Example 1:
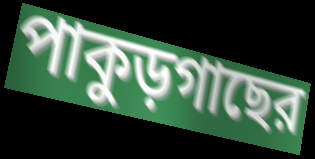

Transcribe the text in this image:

পাকুড়গাছের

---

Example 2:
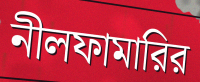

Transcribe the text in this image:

নীলফামারির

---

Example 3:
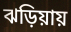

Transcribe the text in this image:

ঝড়িয়ায়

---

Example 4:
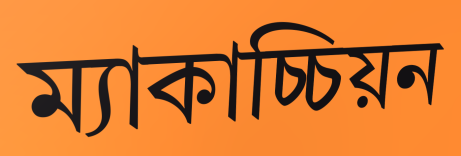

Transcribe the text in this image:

ম্যাকাচ্চিয়ন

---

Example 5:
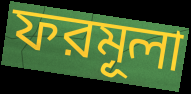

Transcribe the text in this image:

ফরমূলা